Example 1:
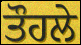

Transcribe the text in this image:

ਤੌਹਲੇ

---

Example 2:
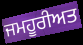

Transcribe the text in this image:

ਜਮਹੂਰੀਅਤ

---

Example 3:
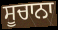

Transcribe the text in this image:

ਸੂਚਾਨਾ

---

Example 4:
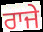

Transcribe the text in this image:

ਰਾਜੇ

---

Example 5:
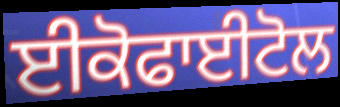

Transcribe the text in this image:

ਈਕੋਫਾਈਟੋਲ